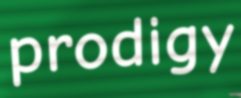
prodigy